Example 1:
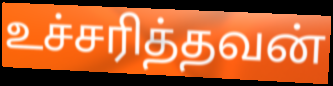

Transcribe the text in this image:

உச்சரித்தவன்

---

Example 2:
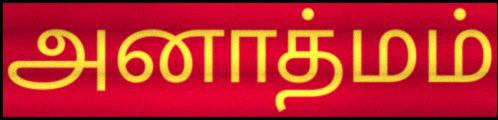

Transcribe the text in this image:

அனாத்மம்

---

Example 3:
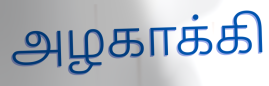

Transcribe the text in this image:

அழகாக்கி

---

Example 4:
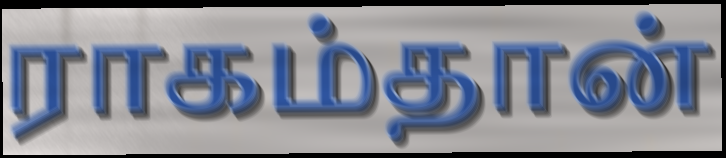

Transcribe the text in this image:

ராகம்தான்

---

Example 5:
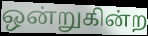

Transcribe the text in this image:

ஒன்றுகின்ற